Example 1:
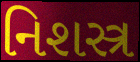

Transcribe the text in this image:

નિશસ્ત્ર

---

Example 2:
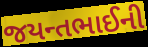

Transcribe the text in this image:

જયન્તભાઈની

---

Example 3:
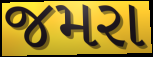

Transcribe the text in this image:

જમરા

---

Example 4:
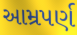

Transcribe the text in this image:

આમ્રપર્ણ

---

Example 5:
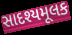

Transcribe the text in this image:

સાદશ્યમૂલક